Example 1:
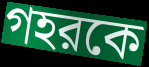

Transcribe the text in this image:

গহরকে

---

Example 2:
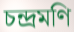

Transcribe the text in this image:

চন্দ্রমণি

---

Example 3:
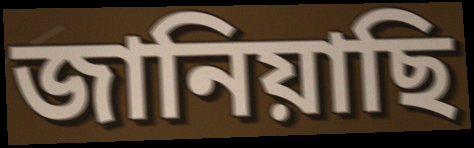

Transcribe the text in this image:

জানিয়াছি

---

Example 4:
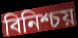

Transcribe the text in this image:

বিনিশ্চয়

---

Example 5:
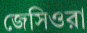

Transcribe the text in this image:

জেসিওরা